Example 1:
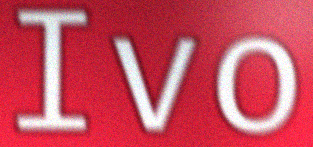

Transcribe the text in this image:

Ivo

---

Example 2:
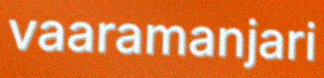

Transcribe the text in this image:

vaaramanjari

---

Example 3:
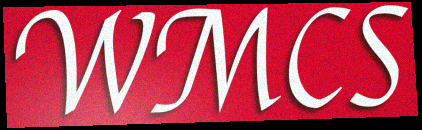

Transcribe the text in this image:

WMCS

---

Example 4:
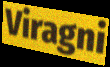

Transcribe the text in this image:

Viragni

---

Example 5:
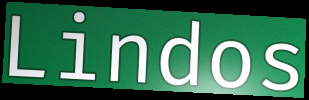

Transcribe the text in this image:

Lindos